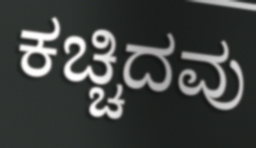
ಕಚ್ಚಿದವು